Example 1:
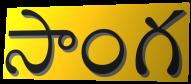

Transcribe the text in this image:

సాంగ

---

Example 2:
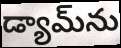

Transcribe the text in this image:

డ్యామ్‌ను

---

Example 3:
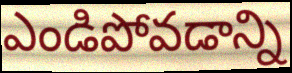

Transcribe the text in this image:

ఎండిపోవడాన్ని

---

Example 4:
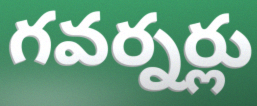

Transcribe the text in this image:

గవర్నర్లు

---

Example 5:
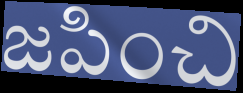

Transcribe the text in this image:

జపించి